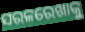
ସରଳରେଖାକୁ